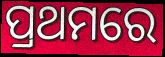
ପ୍ରଥମରେ